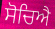
ਸੋਚਿਐ